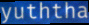
yuththa